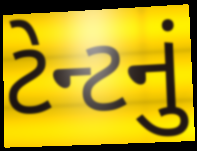
ટેન્ટનું